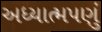
અધ્યાત્મપણું